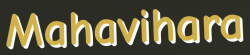
Mahavihara